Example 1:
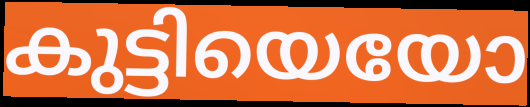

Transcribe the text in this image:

കുട്ടിയെയോ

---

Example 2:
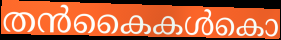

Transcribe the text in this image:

തൻകൈകൾകൊ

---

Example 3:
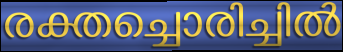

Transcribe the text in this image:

രക്തച്ചൊരിച്ചിൽ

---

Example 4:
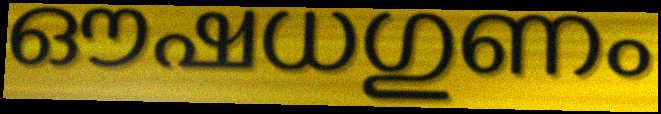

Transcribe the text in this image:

ഔഷധഗുണം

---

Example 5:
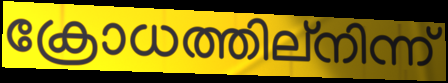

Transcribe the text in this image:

ക്രോധത്തില്നിന്ന്